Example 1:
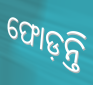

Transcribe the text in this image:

ଫୋଡ଼ନ୍ତି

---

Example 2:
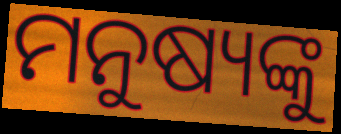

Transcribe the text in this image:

ମନୁଷ୍ୟଙ୍କୁ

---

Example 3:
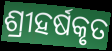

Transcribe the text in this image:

ଶ୍ରୀହର୍ଷକୃତ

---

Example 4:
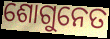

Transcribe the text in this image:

ଶୋଗୁନେତ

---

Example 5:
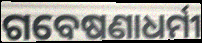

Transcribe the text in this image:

ଗବେଷଣାଧର୍ମୀ